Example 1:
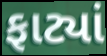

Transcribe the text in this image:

ફાટ્યાં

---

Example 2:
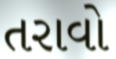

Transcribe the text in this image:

તરાવો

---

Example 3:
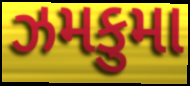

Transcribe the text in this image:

ઝમકુમા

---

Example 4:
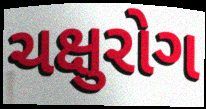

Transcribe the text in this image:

ચક્ષુરોગ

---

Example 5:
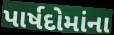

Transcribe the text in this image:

પાર્ષદોમાંના